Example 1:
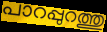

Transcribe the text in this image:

പാറപ്പുറത്തു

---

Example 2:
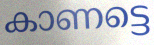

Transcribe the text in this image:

കാണട്ടെ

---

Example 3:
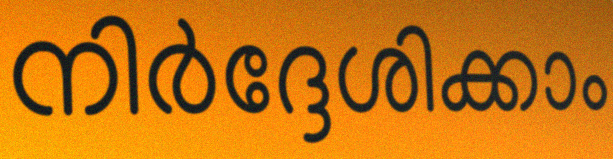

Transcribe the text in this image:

നിർദ്ദേശിക്കാം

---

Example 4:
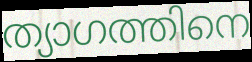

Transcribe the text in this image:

ത്യാഗത്തിനെ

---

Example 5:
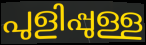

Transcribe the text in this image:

പുളിപ്പുള്ള